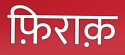
फ़िराक़